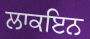
ਲਾਕਇਨ